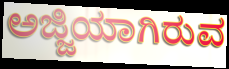
ಅಜ್ಜಿಯಾಗಿರುವ